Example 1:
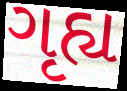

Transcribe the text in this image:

ગૃહ્ય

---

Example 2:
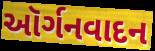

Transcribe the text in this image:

ઑર્ગનવાદન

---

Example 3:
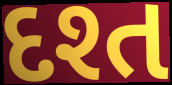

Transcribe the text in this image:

દશ્ત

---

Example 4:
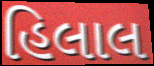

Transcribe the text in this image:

હિલાલ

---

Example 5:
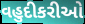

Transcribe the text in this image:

વહુદીકરીઓ